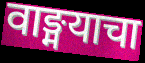
वाङ्मयाचा